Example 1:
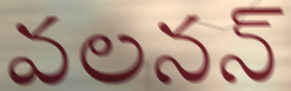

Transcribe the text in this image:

వలనన్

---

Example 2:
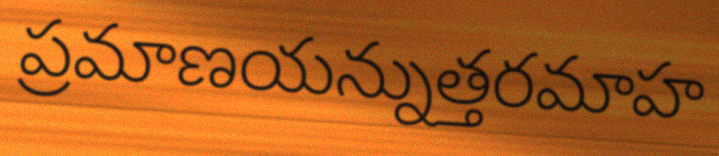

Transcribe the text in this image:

ప్రమాణయన్నుత్తరమాహ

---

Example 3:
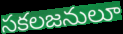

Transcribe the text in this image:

సకలజనులూ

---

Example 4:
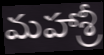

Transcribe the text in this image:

మహాశ్రీ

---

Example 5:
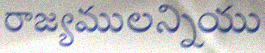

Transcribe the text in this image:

రాజ్యములన్నియు